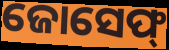
ଜୋସେଫ୍